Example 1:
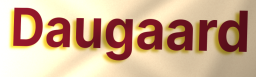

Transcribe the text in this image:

Daugaard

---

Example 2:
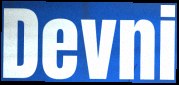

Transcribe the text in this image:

Devni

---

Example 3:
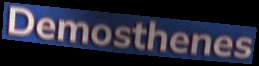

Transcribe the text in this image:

Demosthenes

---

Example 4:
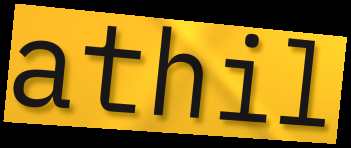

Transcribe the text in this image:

athil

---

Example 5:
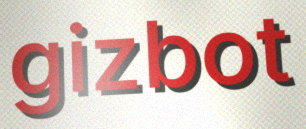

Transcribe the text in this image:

gizbot